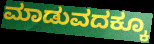
ಮಾಡುವದಕ್ಕೂ